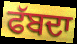
ਫੱਬਦਾ